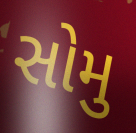
સોમુ